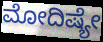
ಮೋದಿಷ್ಯೇ